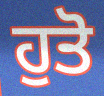
ਹੁਤੋ